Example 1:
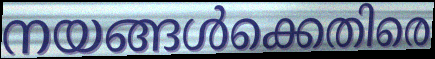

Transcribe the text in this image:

നയങ്ങൾക്കെതിരെ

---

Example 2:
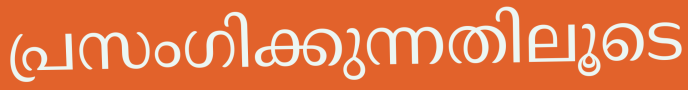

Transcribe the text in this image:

പ്രസംഗിക്കുന്നതിലൂടെ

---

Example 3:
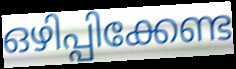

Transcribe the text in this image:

ഒഴിപ്പിക്കേണ്ട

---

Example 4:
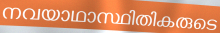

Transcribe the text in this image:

നവയാഥാസ്ഥിതികരുടെ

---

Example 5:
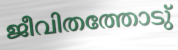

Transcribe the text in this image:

ജീവിതത്തോടു്